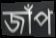
জাঁপ